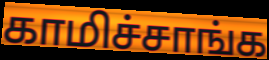
காமிச்சாங்க